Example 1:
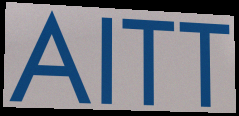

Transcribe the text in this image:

AITT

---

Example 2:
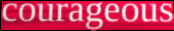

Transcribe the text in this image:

courageous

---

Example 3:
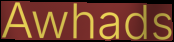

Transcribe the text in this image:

Awhads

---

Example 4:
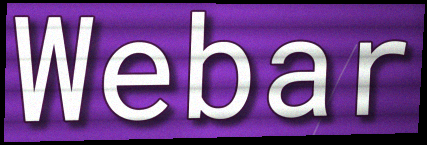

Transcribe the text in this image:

Webar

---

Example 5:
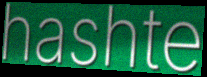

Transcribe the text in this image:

hashte